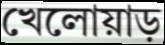
খেলোয়াড়